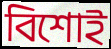
বিশোই